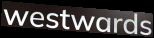
westwards